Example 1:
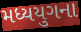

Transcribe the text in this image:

મધ્યયુગના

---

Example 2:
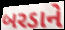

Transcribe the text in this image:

બરડાને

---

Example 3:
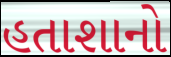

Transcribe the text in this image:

હતાશાનો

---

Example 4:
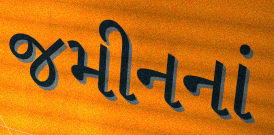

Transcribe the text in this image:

જમીનનાં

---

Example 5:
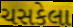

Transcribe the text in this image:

ચસકેલા